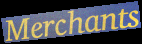
Merchants